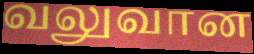
வலுவான